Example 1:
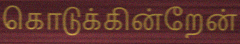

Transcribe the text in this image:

கொடுக்கின்றேன்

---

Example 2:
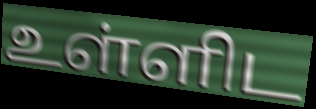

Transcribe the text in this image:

உள்ளிட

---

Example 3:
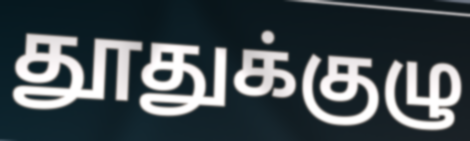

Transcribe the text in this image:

தூதுக்குழு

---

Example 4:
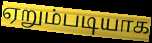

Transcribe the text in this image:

ஏறும்படியாக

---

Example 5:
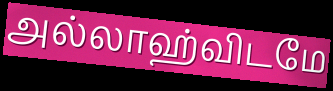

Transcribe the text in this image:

அல்லாஹ்விடமே